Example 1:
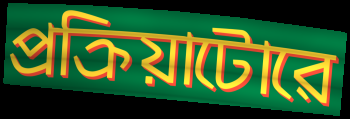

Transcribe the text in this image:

প্ৰক্ৰিয়াটোৱে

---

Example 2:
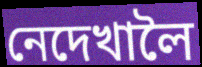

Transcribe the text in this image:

নেদেখালৈ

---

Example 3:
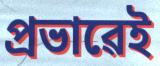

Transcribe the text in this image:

প্ৰভাৱেই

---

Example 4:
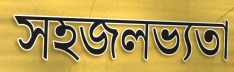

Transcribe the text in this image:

সহজলভ্যতা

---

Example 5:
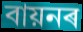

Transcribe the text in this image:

বায়নৰ